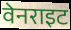
वेनराइट